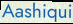
Aashiqui